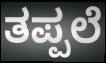
ತಪ್ಪಲೆ